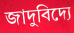
জাদুবিদ্যে